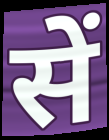
सें